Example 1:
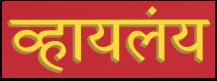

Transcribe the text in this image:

व्हायलंय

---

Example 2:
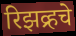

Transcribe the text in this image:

रिझव्र्हचे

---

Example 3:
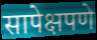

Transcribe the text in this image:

सापेक्षपणे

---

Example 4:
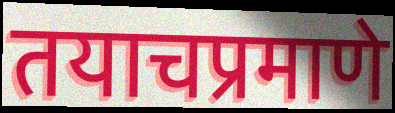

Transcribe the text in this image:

तयाचप्रमाणे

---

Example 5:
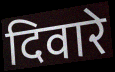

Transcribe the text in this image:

दिवारे